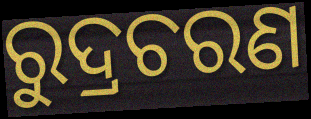
ରୁଦ୍ରଚରଣ